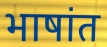
भाषांत